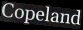
Copeland